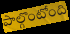
పాల్గొంటోంది